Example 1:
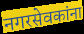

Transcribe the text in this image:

नगरसेवकांना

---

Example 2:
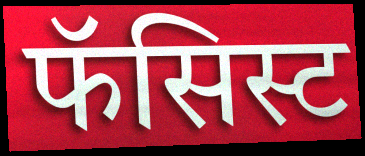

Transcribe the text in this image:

फॅसिस्ट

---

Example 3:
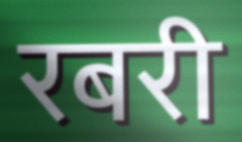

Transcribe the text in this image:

रबरी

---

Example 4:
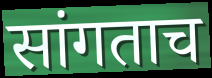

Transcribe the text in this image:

सांगताच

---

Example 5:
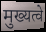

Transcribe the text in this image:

मुख्यत्वे